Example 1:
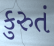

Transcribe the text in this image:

કુરુતં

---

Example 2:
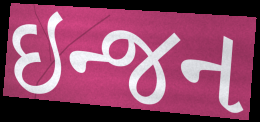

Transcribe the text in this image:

ઇન્જન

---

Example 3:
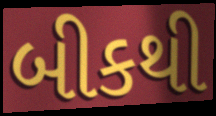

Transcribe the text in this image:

બીકથી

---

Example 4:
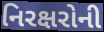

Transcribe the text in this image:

નિરક્ષરોની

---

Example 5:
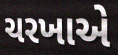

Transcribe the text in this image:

ચરખાએ